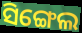
ସିଙ୍ଗେଲ